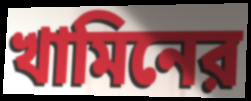
খামিনের